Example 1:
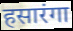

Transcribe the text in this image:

हसारंगा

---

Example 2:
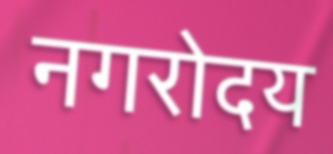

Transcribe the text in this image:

नगरोदय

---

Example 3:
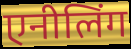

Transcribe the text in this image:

एनीलिंग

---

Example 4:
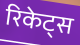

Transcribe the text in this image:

रिकेट्स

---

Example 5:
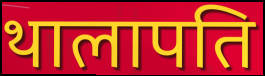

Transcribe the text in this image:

थालापति